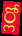
ర్లో